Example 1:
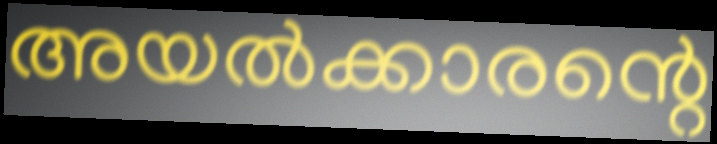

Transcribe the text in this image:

അയൽക്കാരന്റെ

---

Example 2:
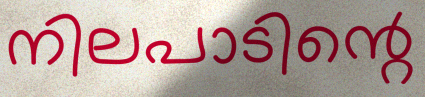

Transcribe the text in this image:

നിലപാടിന്റെ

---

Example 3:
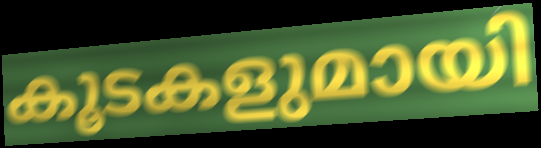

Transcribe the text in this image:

കൂടകളുമായി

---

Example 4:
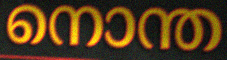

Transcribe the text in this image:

നൊന്ത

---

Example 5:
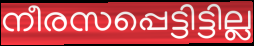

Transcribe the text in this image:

നീരസപ്പെട്ടിട്ടില്ല